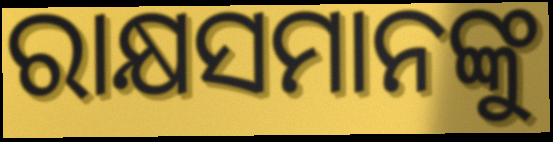
ରାକ୍ଷସମାନଙ୍କୁ